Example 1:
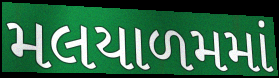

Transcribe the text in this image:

મલયાળમમાં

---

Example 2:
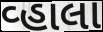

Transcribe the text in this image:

વ્હાલા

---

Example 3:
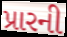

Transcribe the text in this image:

પ્રારની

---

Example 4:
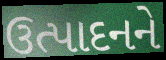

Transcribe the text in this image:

ઉત્પાદનને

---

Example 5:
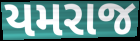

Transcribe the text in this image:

યમરાજ